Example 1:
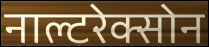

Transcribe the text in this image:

नाल्टरेक्सोन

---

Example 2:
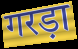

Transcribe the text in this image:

गरड़ा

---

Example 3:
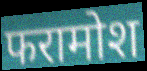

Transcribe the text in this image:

फरामोश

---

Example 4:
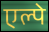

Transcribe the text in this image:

एल्पे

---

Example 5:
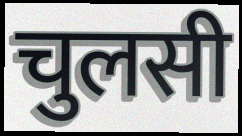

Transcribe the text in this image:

चुलसी